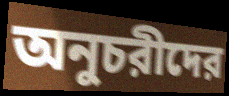
অনুচরীদের